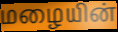
மழையின்